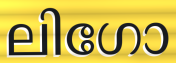
ലിഗോ